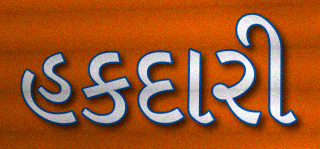
હકદારી